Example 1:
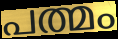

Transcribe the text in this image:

പത്മം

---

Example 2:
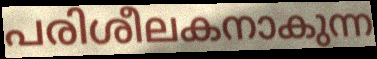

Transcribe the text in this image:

പരിശീലകനാകുന്ന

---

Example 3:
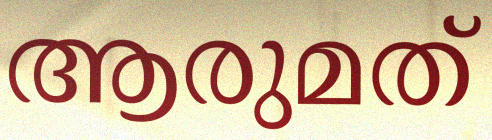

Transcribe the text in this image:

ആരുമത്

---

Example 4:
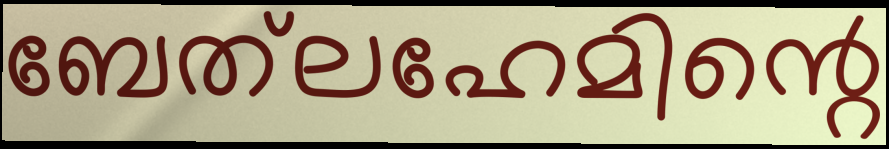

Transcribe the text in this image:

ബേത്‌ലഹേമിന്റെ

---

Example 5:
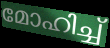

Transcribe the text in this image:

മോഹിച്ച്